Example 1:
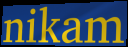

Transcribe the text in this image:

nikam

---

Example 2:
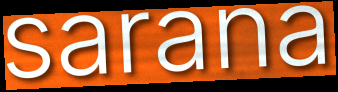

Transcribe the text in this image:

sarana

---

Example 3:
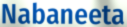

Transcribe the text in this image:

Nabaneeta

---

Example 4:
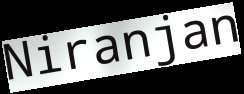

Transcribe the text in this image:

Niranjan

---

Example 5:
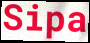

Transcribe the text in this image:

Sipa